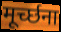
मूर्च्छना